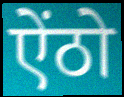
ऐंठो